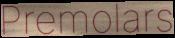
Premolars